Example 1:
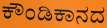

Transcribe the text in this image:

ಕೌಂಡಿಕಾನದ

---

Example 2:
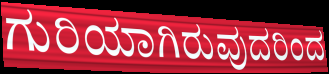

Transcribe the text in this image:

ಗುರಿಯಾಗಿರುವುದರಿಂದ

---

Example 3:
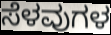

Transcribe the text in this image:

ಸೆಳವುಗಳ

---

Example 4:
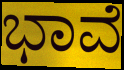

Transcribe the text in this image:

ಭಾವೆ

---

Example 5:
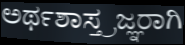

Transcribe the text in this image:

ಅರ್ಥಶಾಸ್ತ್ರಜ್ಞರಾಗಿ